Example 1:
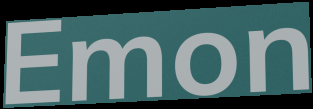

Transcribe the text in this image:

Emon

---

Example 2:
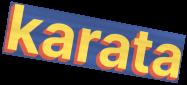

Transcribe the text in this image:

karata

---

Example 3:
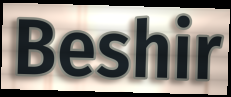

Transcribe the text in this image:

Beshir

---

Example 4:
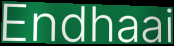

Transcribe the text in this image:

Endhaai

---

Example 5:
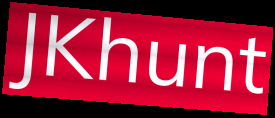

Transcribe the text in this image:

JKhunt